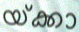
യ്‌ക്കാ